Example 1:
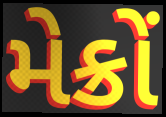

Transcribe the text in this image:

મેક્રોં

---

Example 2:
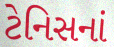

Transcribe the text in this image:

ટેનિસનાં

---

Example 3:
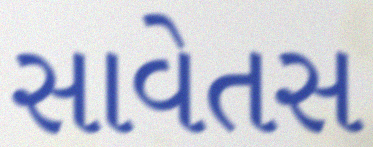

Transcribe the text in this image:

સાવેતસ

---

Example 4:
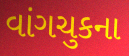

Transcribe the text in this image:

વાંગચુકના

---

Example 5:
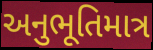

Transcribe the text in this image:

અનુભૂતિમાત્ર